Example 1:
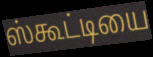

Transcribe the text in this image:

ஸ்கூட்டியை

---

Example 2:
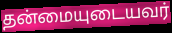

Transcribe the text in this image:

தன்மையுடையவர்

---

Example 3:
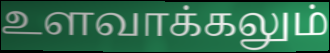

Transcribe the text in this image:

உளவாக்கலும்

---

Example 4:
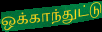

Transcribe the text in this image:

ஒக்காந்துட்டு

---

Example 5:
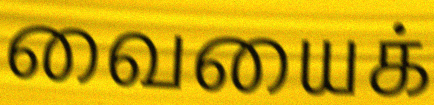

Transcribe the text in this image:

வையைக்